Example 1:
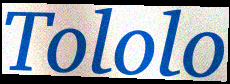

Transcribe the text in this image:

Tololo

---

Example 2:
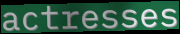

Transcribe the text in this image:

actresses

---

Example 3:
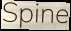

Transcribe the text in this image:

Spine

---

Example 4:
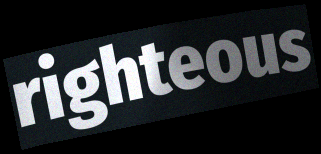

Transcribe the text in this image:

righteous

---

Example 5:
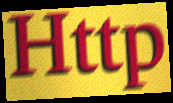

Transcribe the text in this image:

Http